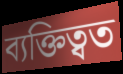
ব্যক্তিত্বত